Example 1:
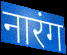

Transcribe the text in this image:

नारंग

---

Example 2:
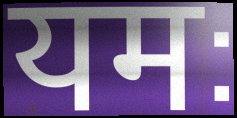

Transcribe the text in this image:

यमः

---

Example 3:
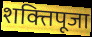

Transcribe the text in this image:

शक्तिपूजा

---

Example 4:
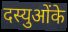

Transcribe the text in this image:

दस्युओंके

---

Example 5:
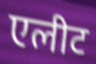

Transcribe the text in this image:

एलीट